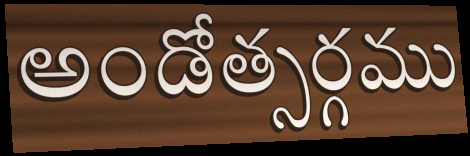
అండోత్సర్గము